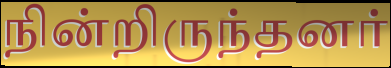
நின்றிருந்தனர்